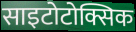
साइटोटोक्सिक